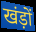
खंड़ों